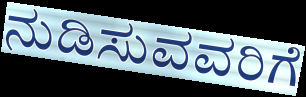
ನುಡಿಸುವವರಿಗೆ